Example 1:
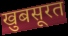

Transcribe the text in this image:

खुबसूरत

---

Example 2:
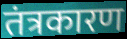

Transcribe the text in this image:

तंत्रकारण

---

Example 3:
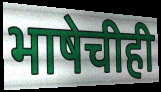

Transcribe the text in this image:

भाषेचीही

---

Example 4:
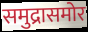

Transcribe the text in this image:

समुद्रासमोर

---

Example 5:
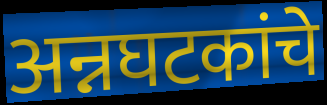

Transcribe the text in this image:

अन्नघटकांचे